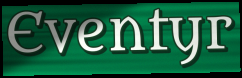
Eventyr